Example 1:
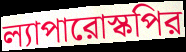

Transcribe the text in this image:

ল্যাপারোস্কপির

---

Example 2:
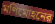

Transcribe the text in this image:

মণিমোহনের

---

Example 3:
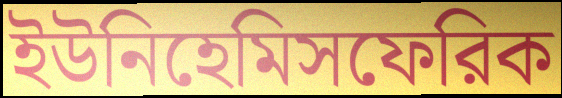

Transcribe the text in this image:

ইউনিহেমিসফেরিক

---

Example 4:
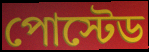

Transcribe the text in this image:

পোস্টেড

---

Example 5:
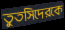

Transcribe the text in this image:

তুতসিদেরকে